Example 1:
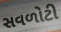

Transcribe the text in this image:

સવળોટી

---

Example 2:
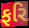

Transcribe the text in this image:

ફરિ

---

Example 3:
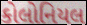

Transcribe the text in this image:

કોલોનિયલ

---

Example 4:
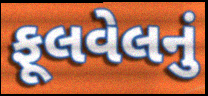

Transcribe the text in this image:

ફૂલવેલનું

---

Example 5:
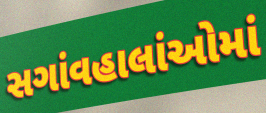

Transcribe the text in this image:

સગાંવહાલાંઓમાં